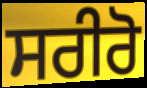
ਸਰੀਰੋ